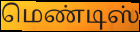
மெண்டிஸ்